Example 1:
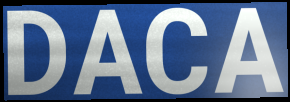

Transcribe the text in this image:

DACA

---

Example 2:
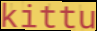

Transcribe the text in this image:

kittu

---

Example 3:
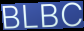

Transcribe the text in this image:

BLBC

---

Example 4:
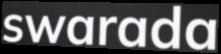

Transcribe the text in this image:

swarada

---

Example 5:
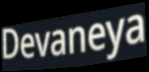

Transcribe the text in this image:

Devaneya